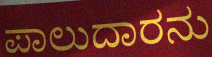
ಪಾಲುದಾರನು